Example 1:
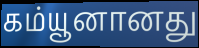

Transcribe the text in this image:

கம்யூனானது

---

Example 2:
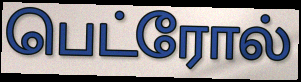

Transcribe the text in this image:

பெட்ரோல்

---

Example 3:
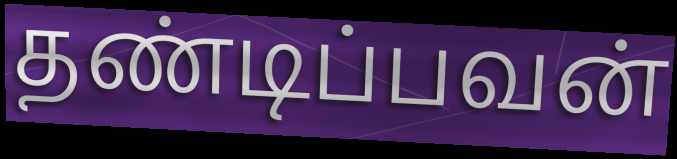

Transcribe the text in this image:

தண்டிப்பவன்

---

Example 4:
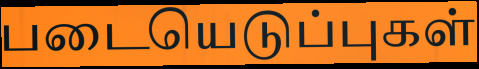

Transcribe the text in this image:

படையெடுப்புகள்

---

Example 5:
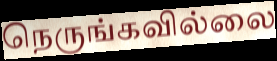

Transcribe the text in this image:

நெருங்கவில்லை